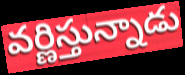
వర్ణిస్తున్నాడు